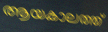
ആയകാലത്ത്